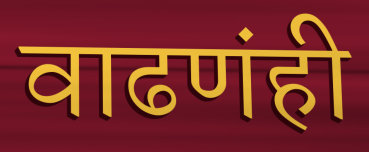
वाढणंही